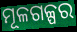
ମୂଳଗଳ୍ପର